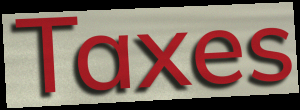
Taxes